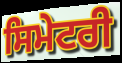
ਸਿਮੇਟਰੀ